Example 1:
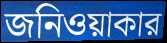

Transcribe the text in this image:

জনিওয়াকার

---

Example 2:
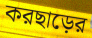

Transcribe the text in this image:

করছাড়ের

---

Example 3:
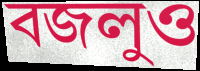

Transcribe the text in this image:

বজলুও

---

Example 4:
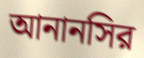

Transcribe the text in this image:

আনানসির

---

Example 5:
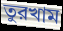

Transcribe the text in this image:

তুরখাম